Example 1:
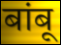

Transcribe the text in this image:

बांबू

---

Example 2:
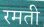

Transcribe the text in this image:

रमती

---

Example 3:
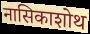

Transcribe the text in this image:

नासिकाशोथ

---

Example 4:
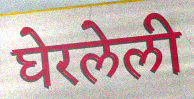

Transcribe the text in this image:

घेरलेली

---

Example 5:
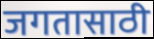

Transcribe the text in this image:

जगतासाठी